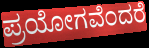
ಪ್ರಯೋಗವೆಂದರೆ